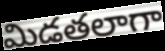
మిడతలాగా